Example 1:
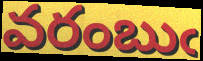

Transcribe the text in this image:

వరంబుఁ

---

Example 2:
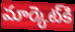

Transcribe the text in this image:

మార్కెట్‌కి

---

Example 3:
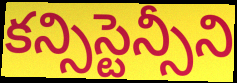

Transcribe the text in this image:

కన్సిస్టెన్సీని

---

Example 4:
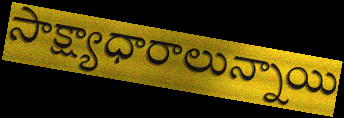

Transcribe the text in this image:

సాక్ష్యాధారాలున్నాయి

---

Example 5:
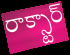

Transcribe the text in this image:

రాక్స్టార్